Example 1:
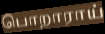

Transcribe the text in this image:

பொறாராய்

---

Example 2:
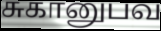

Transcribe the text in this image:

சுகானுபவ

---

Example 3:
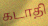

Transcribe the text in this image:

கடாதி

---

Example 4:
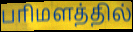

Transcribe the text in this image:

பரிமளத்தில்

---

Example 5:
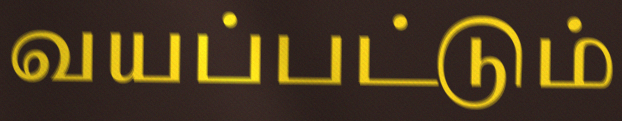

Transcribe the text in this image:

வயப்பட்டும்